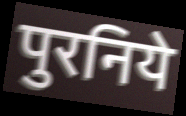
पुरनिये